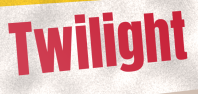
Twilight